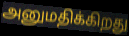
அனுமதிக்கிறது